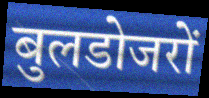
बुलडोजरों